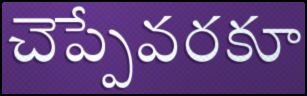
చెప్పేవరకూ